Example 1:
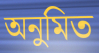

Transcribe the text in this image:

অনুমিত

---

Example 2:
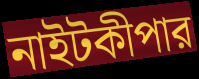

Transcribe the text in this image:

নাইটকীপার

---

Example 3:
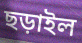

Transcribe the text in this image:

ছড়াইল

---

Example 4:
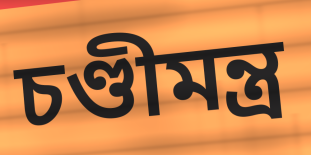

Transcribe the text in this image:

চণ্ডীমন্ত্র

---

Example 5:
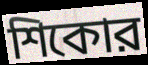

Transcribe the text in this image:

শিকোর